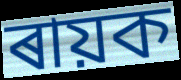
ৰায়ক